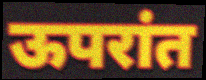
ऊपरांत